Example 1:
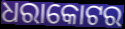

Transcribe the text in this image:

ଧରାକୋଟର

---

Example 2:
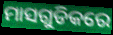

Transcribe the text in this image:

ମାସଗୁଡିକରେ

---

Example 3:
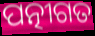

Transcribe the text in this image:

ପତ୍ନୀଗତ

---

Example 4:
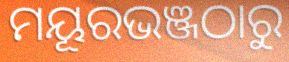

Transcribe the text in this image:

ମୟୂରଭଞ୍ଜଠାରୁ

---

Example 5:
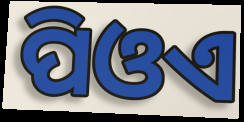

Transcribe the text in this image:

ପିଓଏ